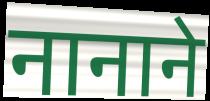
नानाने